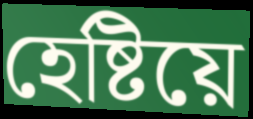
হেষ্টিয়ে